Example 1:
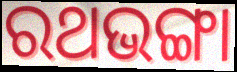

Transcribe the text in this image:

ରଥଭଙ୍ଗା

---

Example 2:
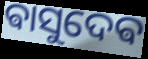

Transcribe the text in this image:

ଵାସୁଦେଵ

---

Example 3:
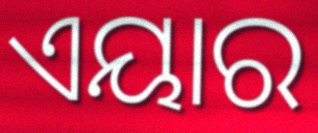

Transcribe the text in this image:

ଏୟାର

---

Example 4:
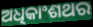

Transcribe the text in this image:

ଅଧିକାଂଶଥର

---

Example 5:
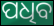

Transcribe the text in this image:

ପଧିବ